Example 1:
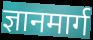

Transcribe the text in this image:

ज्ञानमार्ग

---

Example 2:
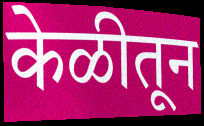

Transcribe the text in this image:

केळीतून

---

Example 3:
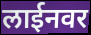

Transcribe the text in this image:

लाईनवर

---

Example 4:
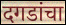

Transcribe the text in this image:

दगडांचा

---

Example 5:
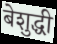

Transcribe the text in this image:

बेशुद्धी